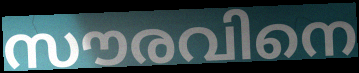
സൗരവിനെ